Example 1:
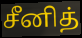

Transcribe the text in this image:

சீனித்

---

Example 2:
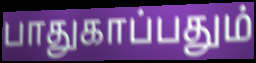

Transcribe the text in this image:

பாதுகாப்பதும்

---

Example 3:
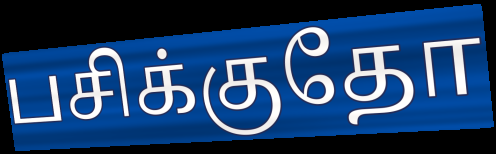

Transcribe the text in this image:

பசிக்குதோ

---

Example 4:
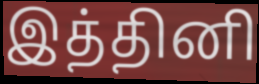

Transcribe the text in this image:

இத்தினி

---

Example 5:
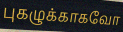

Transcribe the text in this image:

புகழுக்காகவோ